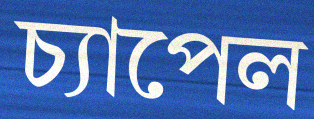
চ্যাপেল